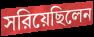
সরিয়েছিলেন